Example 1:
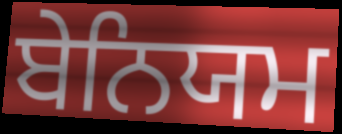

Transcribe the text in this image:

ਬੇਨਿਯਮ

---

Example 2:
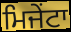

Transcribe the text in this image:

ਮਿਜੇਂਟਾ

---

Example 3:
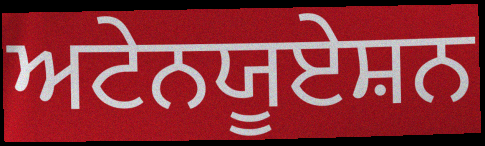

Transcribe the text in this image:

ਅਟੇਨਯੂਏਸ਼ਨ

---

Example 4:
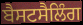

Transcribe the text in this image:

ਬੈਸਟਸੈਲਿੰਗ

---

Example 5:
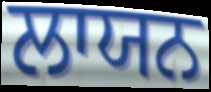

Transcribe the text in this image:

ਲਾਯਨ